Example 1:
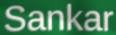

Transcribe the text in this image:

Sankar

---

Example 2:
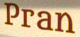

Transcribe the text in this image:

Pran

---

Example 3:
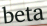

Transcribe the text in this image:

beta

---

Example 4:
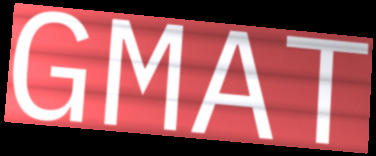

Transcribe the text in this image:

GMAT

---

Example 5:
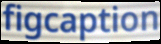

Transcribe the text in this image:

figcaption